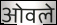
ओवले